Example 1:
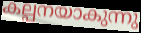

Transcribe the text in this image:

കല്പനയാകുന്നു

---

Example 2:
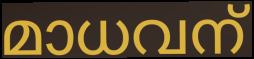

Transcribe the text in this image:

മാധവന്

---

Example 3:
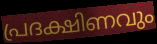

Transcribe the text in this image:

പ്രദക്ഷിണവും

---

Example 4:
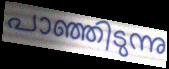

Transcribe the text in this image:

പാഞ്ഞിടുന്നു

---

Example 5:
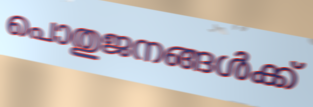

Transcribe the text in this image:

പൊതുജനങ്ങൾക്ക്